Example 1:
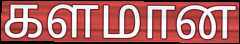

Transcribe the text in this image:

களமான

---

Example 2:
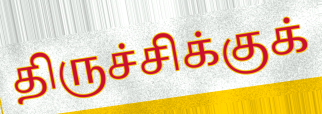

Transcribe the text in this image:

திருச்சிக்குக்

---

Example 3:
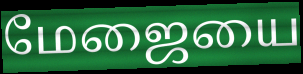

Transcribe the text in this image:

மேஜையை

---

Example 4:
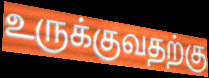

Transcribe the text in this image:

உருக்குவதற்கு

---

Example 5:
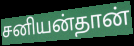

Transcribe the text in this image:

சனியன்தான்